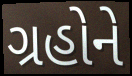
ગ્રહોને